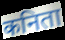
कनिता